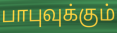
பாபுவுக்கும்